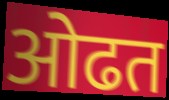
ओढत